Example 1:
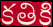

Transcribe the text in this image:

కతికి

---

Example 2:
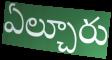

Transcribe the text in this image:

ఏల్చూరు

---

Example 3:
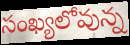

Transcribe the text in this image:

సంఖ్యలోవున్న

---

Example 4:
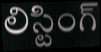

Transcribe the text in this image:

లిస్టింగ్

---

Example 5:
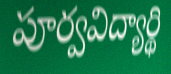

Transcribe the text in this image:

పూర్వవిద్యార్థి